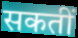
सकतीं